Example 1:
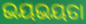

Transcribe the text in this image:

ଭୟଭୟତା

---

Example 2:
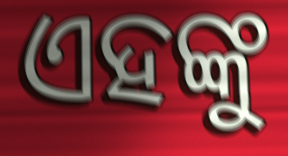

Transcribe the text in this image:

ଏହଙ୍କୁ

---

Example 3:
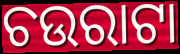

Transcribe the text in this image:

ଚଉରାଟା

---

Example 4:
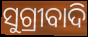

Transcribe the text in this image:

ସୁଗ୍ରୀବାଦି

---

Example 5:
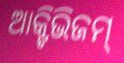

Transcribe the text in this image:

ଆକ୍ଟିଭିଜମ୍